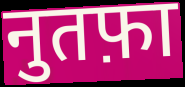
नुतफ़ा